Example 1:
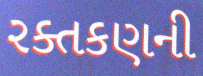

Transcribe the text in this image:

રક્તકણની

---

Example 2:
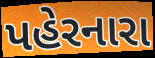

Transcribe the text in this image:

પહેરનારા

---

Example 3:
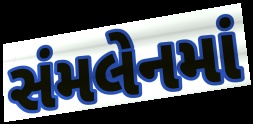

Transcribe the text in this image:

સંમલેનમાં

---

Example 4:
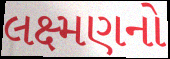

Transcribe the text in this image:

લક્ષ્મણનો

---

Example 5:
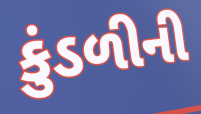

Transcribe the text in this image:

કુંડળીની